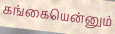
கங்கையென்னும்